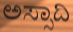
ಅಸ್ಸಾದಿ